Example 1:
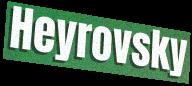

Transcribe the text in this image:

Heyrovsky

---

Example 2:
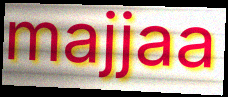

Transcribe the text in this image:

majjaa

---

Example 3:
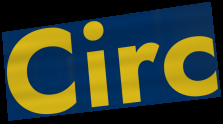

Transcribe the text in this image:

Circ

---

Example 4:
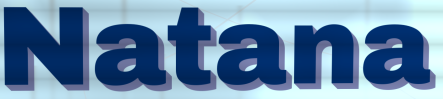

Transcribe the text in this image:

Natana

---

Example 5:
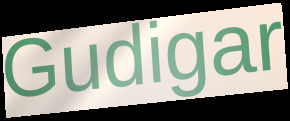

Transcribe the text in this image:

Gudigar